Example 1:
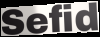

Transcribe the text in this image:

Sefid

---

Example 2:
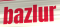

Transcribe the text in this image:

bazlur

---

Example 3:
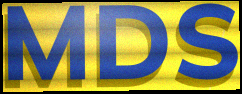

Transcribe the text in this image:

MDS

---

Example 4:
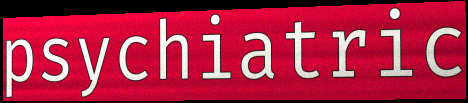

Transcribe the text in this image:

psychiatric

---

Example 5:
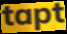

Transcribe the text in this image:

tapt